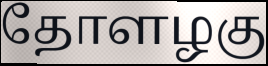
தோளழகு